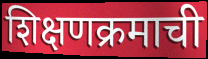
शिक्षणक्रमाची